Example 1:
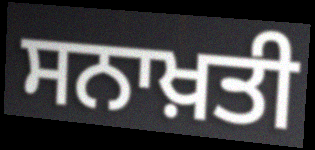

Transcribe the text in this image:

ਸਨਾਖ਼ਤੀ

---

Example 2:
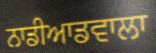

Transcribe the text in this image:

ਨਾਡੀਆਡਵਾਲਾ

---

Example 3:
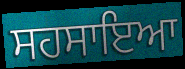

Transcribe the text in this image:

ਸਹਸਾਇਆ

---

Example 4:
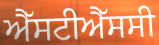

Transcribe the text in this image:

ਐੱਸਟੀਐੱਸਸੀ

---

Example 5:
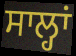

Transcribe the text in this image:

ਸਾਲ੍ਹਾਂ